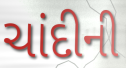
ચાંદીની